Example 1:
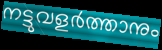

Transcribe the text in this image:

നട്ടുവളർത്താനും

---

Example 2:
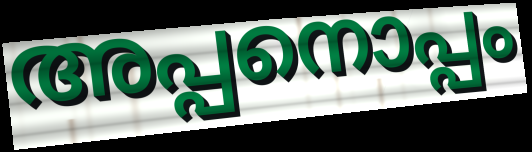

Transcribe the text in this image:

അപ്പനൊപ്പം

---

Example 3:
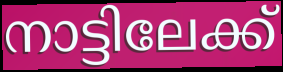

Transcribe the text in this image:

നാട്ടിലേക്ക്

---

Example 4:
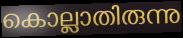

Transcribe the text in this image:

കൊല്ലാതിരുന്നു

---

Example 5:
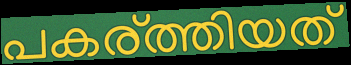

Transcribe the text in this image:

പകര്ത്തിയത്